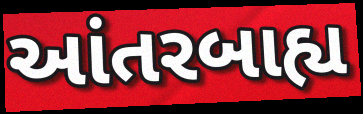
આંતરબાહ્ય